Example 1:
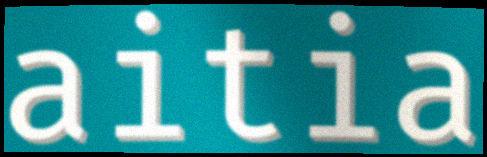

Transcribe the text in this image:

aitia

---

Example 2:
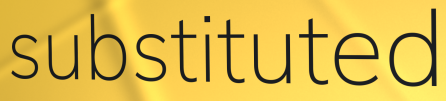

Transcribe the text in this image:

substituted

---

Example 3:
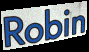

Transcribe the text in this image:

Robin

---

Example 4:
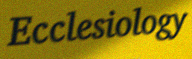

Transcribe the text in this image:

Ecclesiology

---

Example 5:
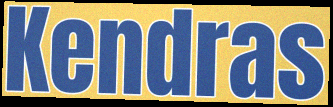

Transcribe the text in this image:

Kendras